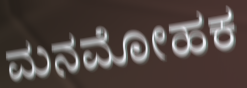
ಮನಮೋಹಕ